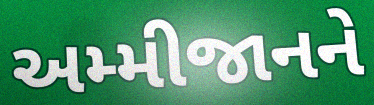
અમ્મીજાનને